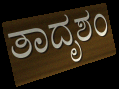
ತಾದೃಶಂ